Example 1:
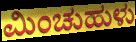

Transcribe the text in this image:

ಮಿಂಚುಹುಳು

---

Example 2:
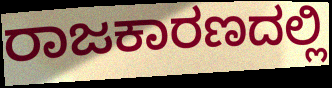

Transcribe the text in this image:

ರಾಜಕಾರಣದಲ್ಲಿ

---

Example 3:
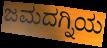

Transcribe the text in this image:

ಜಮದಗ್ನಿಯ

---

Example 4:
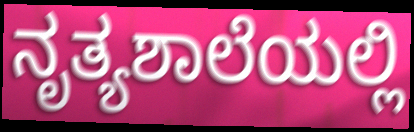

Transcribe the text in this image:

ನೃತ್ಯಶಾಲೆಯಲ್ಲಿ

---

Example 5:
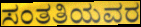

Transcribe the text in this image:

ಸಂತತಿಯವರ